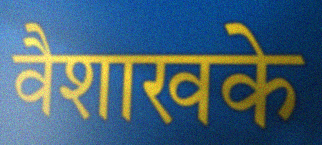
वैशाखके